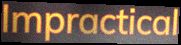
Impractical